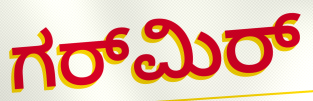
ಗರ್‌ಮಿರ್